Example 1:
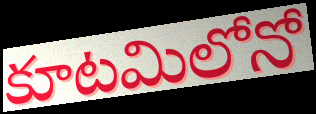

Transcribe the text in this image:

కూటమిలోనో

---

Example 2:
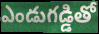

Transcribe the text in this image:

ఎండుగడ్డితో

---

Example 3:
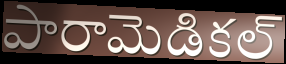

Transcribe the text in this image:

పారామెడికల్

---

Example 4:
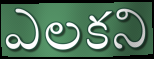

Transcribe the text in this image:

ఎలకని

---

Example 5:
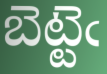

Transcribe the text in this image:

బెట్టెఁ